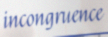
incongruence